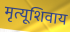
मृत्यूशिवाय